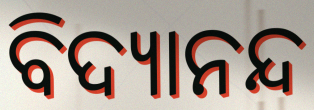
ବିଦ୍ୟାନନ୍ଦ